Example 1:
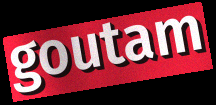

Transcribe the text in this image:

goutam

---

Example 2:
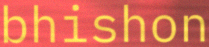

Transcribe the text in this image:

bhishon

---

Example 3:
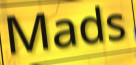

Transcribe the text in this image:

Mads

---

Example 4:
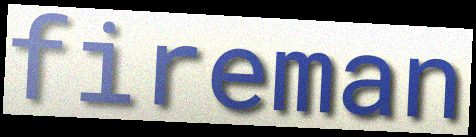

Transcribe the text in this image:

fireman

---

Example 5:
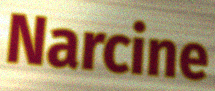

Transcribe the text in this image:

Narcine